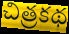
చిత్రకథ